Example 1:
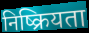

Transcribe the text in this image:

निष्क्रियता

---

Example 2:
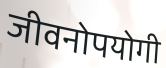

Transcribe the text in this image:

जीवनोपयोगी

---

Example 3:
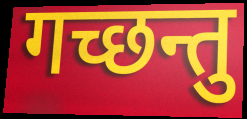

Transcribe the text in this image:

गच्छन्तु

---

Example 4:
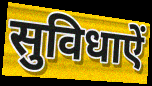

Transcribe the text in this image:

सुविधाऐं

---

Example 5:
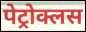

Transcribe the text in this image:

पेट्रोक्लस